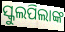
ସ୍କୁଲପିଲାଙ୍କ